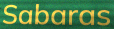
Sabaras